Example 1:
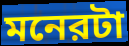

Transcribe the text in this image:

মনেরটা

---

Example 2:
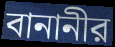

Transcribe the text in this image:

বানানীর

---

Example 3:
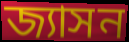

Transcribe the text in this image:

জ্যাসন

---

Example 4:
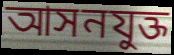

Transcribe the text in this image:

আসনযুক্ত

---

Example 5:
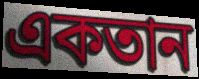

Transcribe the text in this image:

একতান